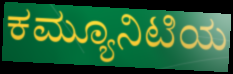
ಕಮ್ಯೂನಿಟಿಯ